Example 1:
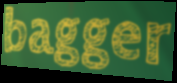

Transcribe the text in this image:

bagger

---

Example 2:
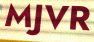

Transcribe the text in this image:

MJVR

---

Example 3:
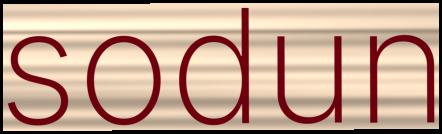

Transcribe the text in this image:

sodun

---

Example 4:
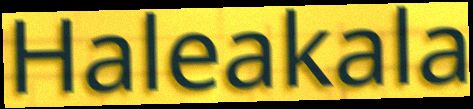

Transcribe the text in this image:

Haleakala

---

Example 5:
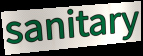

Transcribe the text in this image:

sanitary